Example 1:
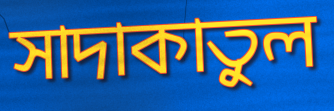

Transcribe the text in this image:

সাদাকাতুল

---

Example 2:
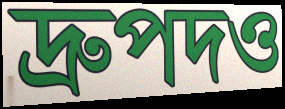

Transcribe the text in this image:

দ্রুপদও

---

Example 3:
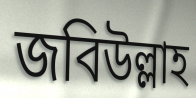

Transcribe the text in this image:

জবিউল্লাহ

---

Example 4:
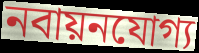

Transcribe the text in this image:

নবায়নযোগ্য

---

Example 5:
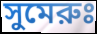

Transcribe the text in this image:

সুমেরুঃ